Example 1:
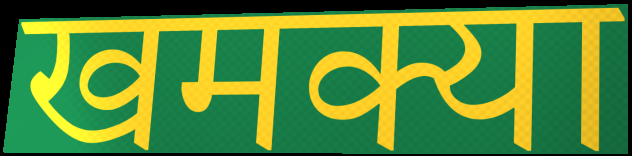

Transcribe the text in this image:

खमक्या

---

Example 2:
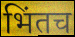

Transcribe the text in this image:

भिंतच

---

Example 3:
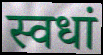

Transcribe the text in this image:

स्वधां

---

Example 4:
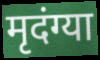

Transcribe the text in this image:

मृदंग्या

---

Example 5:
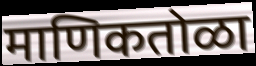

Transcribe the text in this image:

माणिकतोळा